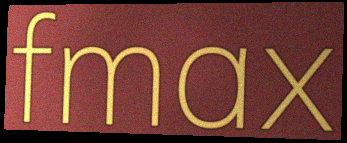
fmax